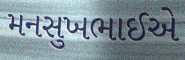
મનસુખભાઈએ